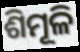
ଶିମୂଳି